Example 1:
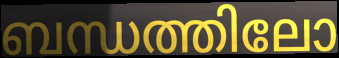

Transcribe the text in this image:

ബന്ധത്തിലോ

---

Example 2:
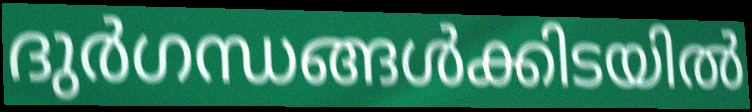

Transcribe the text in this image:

ദുർഗന്ധങ്ങൾക്കിടയിൽ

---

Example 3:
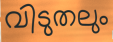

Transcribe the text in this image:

വിടുതലും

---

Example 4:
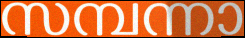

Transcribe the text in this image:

സമ്പന്നാ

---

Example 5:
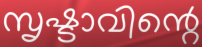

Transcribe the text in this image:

സൃഷ്ടാവിന്റെ